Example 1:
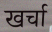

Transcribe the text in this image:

खर्चा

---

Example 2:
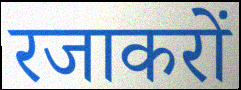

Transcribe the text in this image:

रजाकरों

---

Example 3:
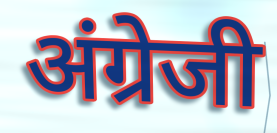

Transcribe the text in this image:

अंग्रेजी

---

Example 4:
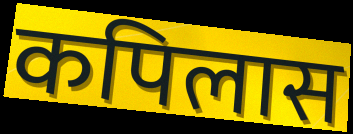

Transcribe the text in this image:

कपिलास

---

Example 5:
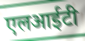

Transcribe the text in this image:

एलआईटी